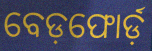
ବେଡ଼ଫୋର୍ଡ଼